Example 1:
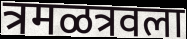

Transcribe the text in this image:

त्रमळत्रवला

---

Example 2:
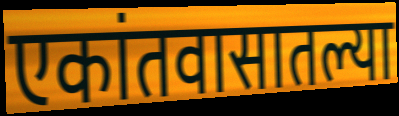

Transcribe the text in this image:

एकांतवासातल्या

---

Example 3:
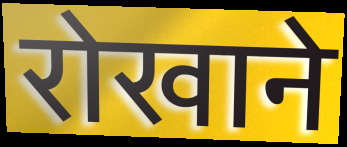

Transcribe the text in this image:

रोखाने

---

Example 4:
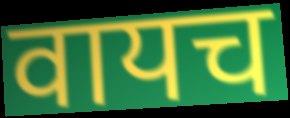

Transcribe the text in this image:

वायच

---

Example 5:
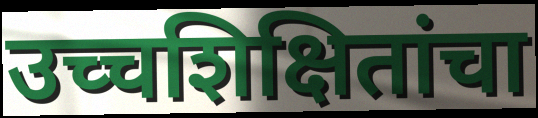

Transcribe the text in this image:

उच्चशिक्षितांचा